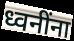
ध्वनींना